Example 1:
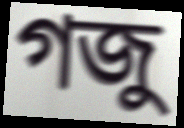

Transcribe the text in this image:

গজু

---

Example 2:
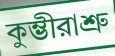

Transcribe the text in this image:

কুম্ভীরাশ্রু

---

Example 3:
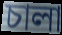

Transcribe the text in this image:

চালা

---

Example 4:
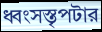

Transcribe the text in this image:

ধ্বংসস্তৃপটার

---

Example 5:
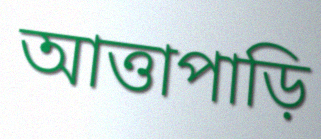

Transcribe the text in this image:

আত্তাপাড়ি